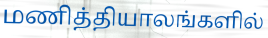
மணித்தியாலங்களில்